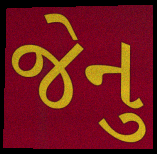
જેનુ